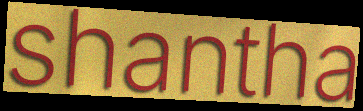
shantha